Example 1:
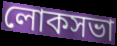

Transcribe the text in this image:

লোকসভা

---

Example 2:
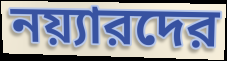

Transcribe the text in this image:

নয়্যারদের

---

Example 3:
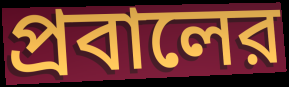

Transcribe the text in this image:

প্রবালের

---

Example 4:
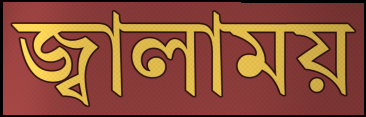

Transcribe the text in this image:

জ্বালাময়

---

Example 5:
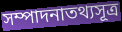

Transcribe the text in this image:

সম্পাদনাতথ্যসূত্র